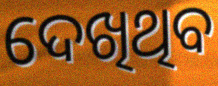
ଦେଖିଥିବ